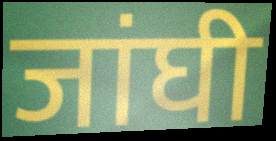
जांघी